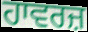
ਹਾਵਰਜ਼